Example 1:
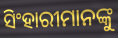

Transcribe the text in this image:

ସିଂହାରୀମାନଙ୍କୁ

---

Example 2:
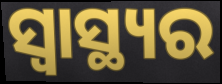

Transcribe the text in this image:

ସ୍ବାସ୍ଥ୍ୟର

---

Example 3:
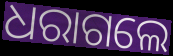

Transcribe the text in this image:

ଧରାଗଲେ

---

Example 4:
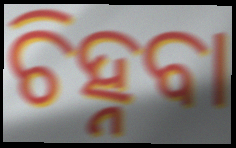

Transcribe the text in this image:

ଚିହ୍ନବା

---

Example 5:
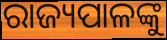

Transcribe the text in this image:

ରାଜ୍ୟପାଳଙ୍କୁ